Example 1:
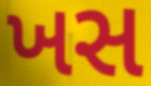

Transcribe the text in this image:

ખસ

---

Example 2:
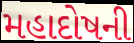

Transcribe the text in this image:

મહાદોષની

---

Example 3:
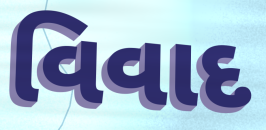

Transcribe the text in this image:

વિવાદ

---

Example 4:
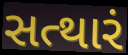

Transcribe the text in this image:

સત્થારં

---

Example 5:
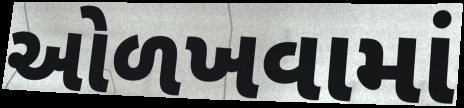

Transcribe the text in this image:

ઓળખવામાં